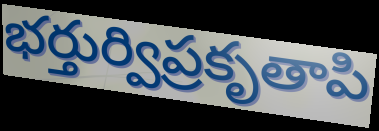
భర్తుర్విప్రకృతాపి